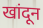
खांदून